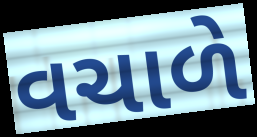
વચાળે